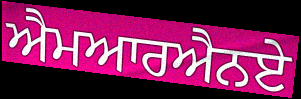
ਐਮਆਰਐਨਏ